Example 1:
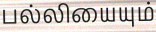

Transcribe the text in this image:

பல்லியையும்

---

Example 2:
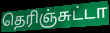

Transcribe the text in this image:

தெரிஞ்சுட்டா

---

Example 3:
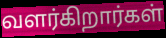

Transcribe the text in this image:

வளர்கிறார்கள்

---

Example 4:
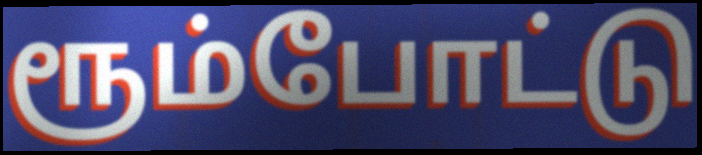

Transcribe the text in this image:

ரூம்போட்டு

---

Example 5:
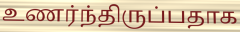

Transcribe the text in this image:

உணர்ந்திருப்பதாக